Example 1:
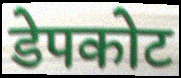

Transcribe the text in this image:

डेपकोट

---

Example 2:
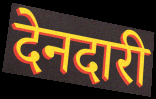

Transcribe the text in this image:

देनदारी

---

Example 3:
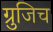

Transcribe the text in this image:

ग्रुजिच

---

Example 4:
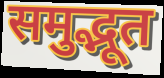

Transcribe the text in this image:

समुद्भूत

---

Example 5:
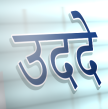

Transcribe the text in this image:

उददे